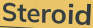
Steroid